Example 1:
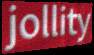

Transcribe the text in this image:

jollity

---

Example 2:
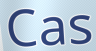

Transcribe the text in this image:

Cas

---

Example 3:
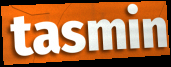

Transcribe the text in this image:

tasmin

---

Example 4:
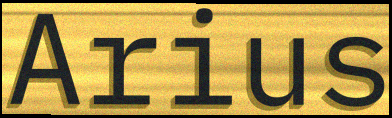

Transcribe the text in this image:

Arius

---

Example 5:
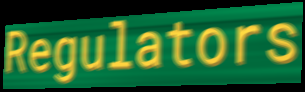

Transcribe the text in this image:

Regulators